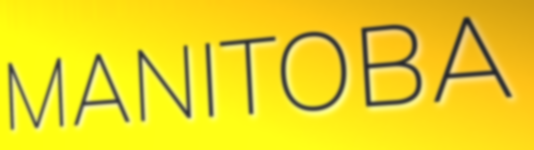
MANITOBA